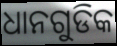
ଧାନଗୁଡିକ